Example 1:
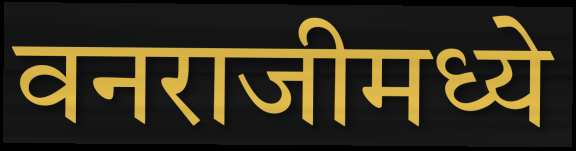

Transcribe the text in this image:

वनराजीमध्ये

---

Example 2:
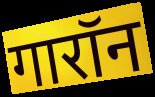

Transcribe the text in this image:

गारॉन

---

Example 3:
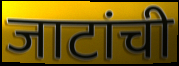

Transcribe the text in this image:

जाटांची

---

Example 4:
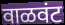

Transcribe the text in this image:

वाळवंट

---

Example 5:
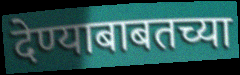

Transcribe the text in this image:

देण्याबाबतच्या